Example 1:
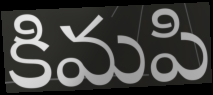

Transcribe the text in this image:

కిమపి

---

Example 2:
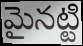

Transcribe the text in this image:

మైనట్టి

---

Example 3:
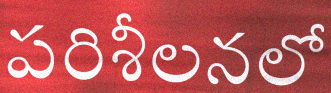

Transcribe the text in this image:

పరిశీలనలో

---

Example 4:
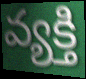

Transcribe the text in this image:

వ్యక్తి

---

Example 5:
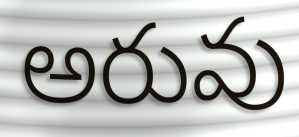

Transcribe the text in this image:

అరువు